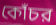
কোঁচর